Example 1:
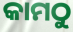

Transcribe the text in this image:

କାମଠୁ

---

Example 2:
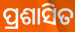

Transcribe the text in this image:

ପ୍ରଶାସିତ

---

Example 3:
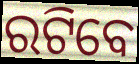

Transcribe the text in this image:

ରଟିବେ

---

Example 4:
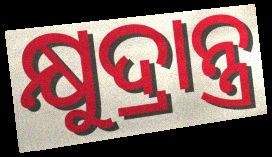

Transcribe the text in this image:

କ୍ଷୁଦ୍ରାନ୍ତ୍ର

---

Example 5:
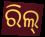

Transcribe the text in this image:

ରିଲ୍